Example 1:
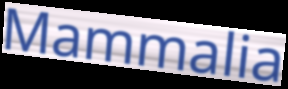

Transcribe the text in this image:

Mammalia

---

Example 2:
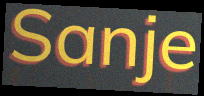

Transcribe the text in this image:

Sanje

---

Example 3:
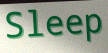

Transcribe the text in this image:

Sleep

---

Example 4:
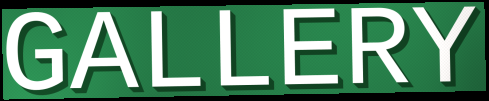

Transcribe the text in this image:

GALLERY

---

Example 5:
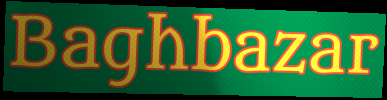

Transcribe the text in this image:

Baghbazar